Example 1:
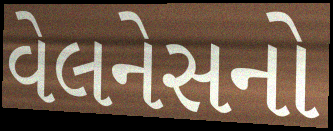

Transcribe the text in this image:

વેલનેસનો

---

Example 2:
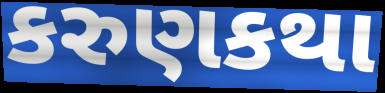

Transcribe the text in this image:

કરુણકથા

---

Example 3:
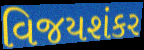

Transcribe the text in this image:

વિજયશંકર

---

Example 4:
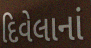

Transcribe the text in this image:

દિવેલાનાં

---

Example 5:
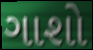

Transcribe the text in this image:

ગાશો